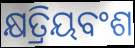
କ୍ଷତ୍ରିୟବଂଶ